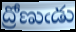
ద్రోణుఁడు